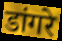
डांगरे